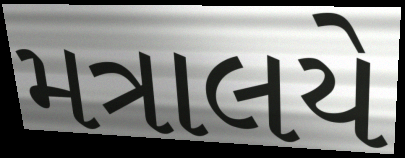
મત્રાલયે